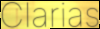
Clarias